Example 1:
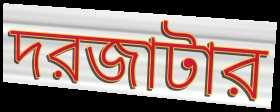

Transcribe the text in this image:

দরজাটার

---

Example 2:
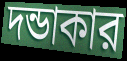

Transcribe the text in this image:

দন্ডাকার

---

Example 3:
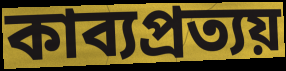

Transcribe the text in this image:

কাব্যপ্রত্যয়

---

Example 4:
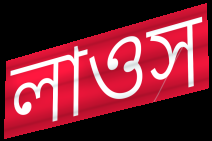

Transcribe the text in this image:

লাওস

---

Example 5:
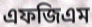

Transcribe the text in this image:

এফজিএম